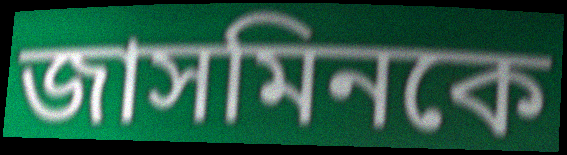
জাসমিনকে